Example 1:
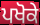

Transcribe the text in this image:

ਪਖੋਕੇ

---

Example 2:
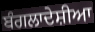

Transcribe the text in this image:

ਬੰਗਲਾਦੇਸ਼ੀਆ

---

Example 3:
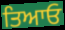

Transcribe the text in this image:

ਤਿਆਓ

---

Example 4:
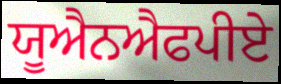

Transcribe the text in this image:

ਯੂਐਨਐਫਪੀਏ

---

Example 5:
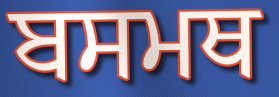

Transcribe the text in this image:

ਬਸਮਥ